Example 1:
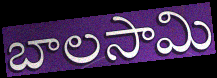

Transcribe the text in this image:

బాలసామి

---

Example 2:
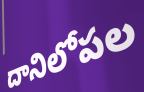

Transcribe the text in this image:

దానిలోపల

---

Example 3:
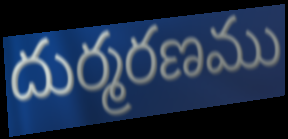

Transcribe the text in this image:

దుర్మరణము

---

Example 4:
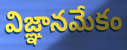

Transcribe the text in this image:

విజ్ఞానమేకం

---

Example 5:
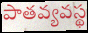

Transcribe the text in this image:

పాతవ్యవస్థ